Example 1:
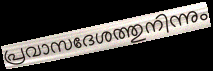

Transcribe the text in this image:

പ്രവാസദേശത്തുനിന്നും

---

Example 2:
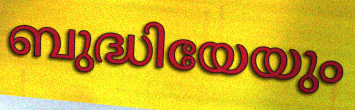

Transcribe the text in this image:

ബുദ്ധിയേയും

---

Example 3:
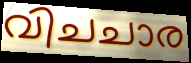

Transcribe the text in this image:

വിചചാര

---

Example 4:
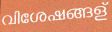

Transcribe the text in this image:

വിശേഷങ്ങള്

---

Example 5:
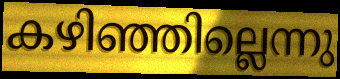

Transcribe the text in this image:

കഴിഞ്ഞില്ലെന്നു